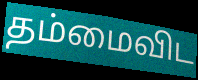
தம்மைவிட